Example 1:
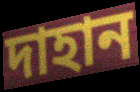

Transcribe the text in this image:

দাহান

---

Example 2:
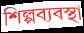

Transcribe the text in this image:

শিল্পব্যবস্থা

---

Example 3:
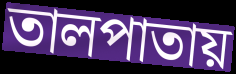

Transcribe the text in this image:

তালপাতায়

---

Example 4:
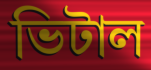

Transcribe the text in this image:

ভিটাল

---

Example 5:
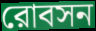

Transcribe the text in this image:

রোবসন